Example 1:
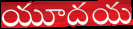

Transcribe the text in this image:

యూదయ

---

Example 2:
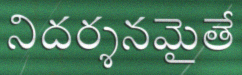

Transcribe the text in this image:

నిదర్శనమైతే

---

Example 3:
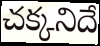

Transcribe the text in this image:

చక్కనిదే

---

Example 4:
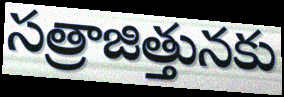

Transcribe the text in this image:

సత్రాజిత్తునకు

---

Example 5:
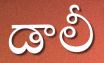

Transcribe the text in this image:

డాలీ